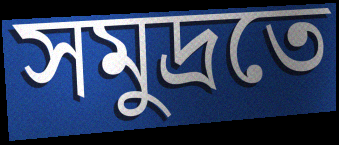
সমুদ্ৰতে